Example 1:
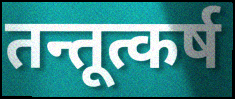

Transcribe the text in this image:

तन्तूत्कर्ष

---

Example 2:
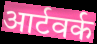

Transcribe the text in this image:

आर्टवर्क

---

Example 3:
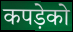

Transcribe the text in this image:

कपड़ेको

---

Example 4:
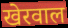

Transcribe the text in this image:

खेरवाल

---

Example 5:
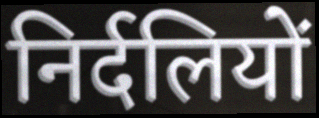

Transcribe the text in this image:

निर्दलियों